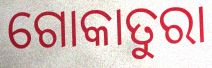
ଗୋକାତୁରା